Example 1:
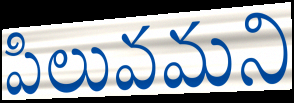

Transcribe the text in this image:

పిలువమని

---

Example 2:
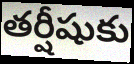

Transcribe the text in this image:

తర్షీషుకు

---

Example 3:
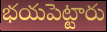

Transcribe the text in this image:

భయపెట్టారు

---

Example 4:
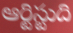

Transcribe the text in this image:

ఆర్టిస్టుది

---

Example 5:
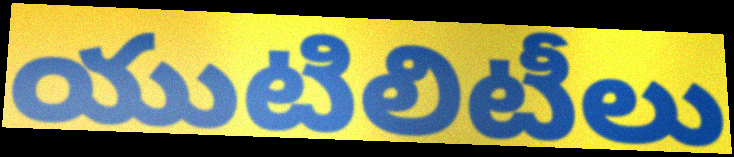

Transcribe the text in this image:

యుటిలిటీలు